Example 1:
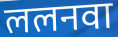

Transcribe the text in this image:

ललनवा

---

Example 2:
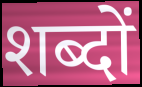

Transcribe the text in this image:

शब्दों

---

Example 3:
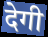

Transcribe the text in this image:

देगी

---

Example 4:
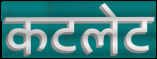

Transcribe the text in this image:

कटलेट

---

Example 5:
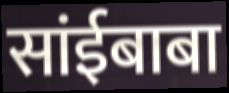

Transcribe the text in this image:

सांईबाबा